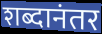
शब्दानंतर